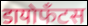
डायोफँटस